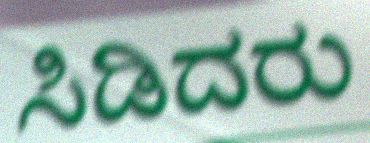
ಸಿಡಿದರು